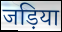
जड़िया